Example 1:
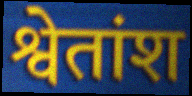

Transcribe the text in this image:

श्वेतांश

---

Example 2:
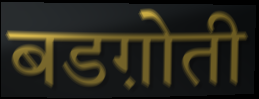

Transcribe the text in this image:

बडग़ोती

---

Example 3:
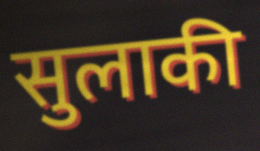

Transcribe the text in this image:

सुलाकी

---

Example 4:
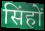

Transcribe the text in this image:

सिंहों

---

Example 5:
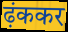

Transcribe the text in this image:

ढ़ंककर